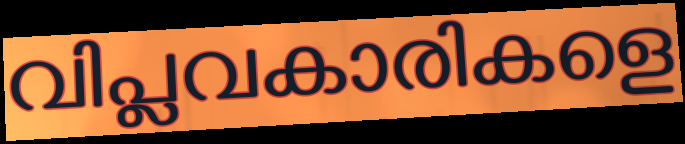
വിപ്ലവകാരികളെ